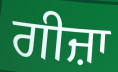
ਗੀਜ਼ਾ